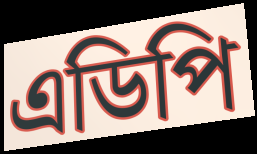
এডিপি